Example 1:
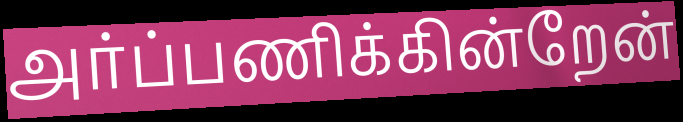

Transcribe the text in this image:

அர்ப்பணிக்கின்றேன்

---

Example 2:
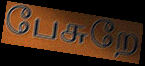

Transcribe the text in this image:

பேசுறே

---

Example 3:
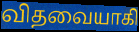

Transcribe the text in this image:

விதவையாகி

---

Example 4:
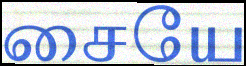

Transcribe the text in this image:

சையே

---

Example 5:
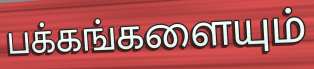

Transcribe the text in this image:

பக்கங்களையும்